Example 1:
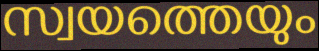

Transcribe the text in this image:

സ്വയത്തെയും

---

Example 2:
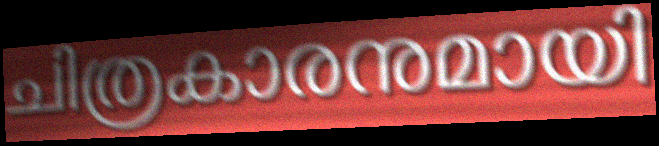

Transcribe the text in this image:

ചിത്രകാരനുമായി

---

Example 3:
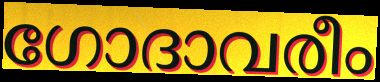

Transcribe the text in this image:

ഗോദാവരീം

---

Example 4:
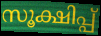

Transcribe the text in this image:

സൂക്ഷിപ്പ്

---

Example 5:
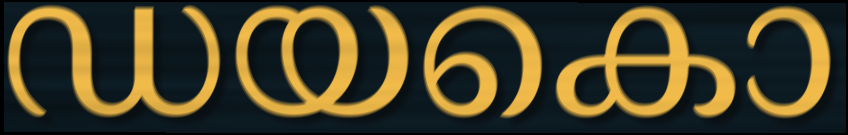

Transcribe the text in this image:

ഡയകൊ